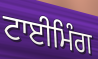
ਟਾਈਮਿੰਗ